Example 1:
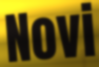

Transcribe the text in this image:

Novi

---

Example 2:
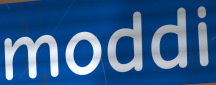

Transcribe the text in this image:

moddi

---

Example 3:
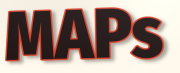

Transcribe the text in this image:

MAPs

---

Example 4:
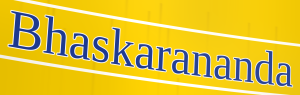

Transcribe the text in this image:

Bhaskarananda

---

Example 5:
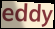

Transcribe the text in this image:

eddy